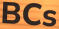
BCs